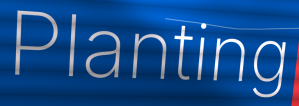
Planting